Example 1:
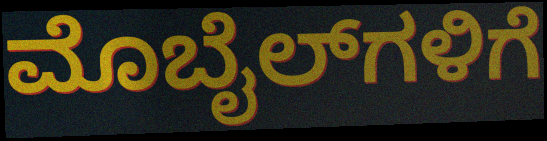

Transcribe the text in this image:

ಮೊಬೈಲ್‌ಗಳಿಗೆ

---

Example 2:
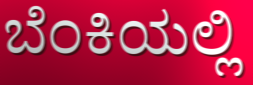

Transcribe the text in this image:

ಬೆಂಕಿಯಲ್ಲಿ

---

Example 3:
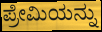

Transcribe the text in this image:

ಪ್ರೇಮಿಯನ್ನು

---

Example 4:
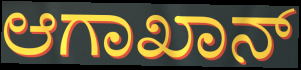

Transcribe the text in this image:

ಆಗಾಖಾನ್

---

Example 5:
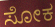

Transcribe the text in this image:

ಸೋಕ